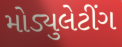
મોડ્યુલેટીંગ